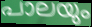
പാലയും